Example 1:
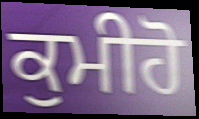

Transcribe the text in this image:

ਕੁਮੀਹੋ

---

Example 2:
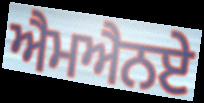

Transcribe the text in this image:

ਐਮਐਨਏ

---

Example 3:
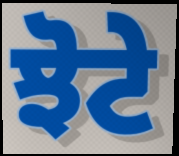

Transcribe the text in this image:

ਝੋਟੇ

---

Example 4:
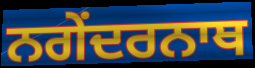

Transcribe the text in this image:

ਨਗੇਂਦਰਨਾਥ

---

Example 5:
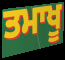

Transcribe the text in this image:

ਤਮਾਖੂ